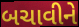
બચાવીને